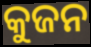
କୁଜନ